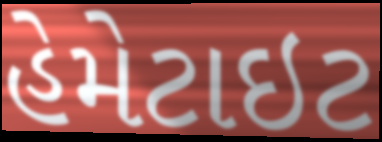
હેમેટાઇટ